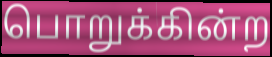
பொறுக்கின்ற